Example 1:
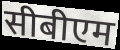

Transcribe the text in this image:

सीबीएम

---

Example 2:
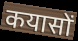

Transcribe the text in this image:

कयासों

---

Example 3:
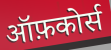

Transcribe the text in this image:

ऑफ़कोर्स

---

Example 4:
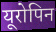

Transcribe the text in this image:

यूरोपिन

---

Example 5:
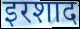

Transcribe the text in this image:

इरशाद